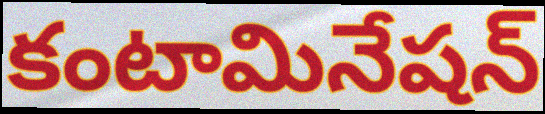
కంటామినేషన్